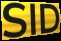
SID